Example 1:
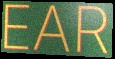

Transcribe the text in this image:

EAR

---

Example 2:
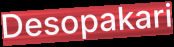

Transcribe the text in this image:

Desopakari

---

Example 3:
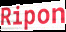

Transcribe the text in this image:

Ripon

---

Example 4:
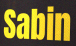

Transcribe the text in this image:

Sabin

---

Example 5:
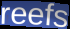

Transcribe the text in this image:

reefs